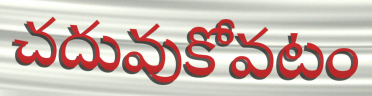
చదువుకోవటం